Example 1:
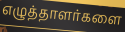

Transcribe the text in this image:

எழுத்தாளர்களை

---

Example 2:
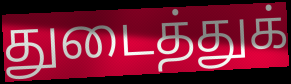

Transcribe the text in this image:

துடைத்துக்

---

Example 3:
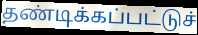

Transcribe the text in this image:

தண்டிக்கப்பட்டுச்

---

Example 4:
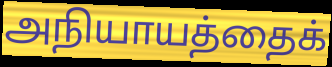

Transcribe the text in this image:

அநியாயத்தைக்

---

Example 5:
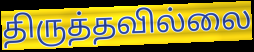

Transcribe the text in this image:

திருத்தவில்லை